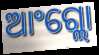
ଆଂଗ୍ଲୋ